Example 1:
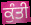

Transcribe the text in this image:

ਕੁੰਤੀ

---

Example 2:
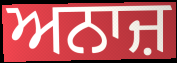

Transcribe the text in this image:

ਅਨਾਜ਼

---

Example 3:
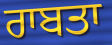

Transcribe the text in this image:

ਰਾਬਤਾ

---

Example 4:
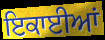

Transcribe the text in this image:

ਇਕਾਈਆਂ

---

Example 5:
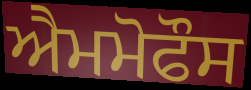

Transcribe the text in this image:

ਐਮਮੋਫੌਸ